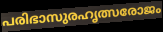
പരിഭാസുരഹൃത്സരോജം